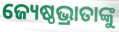
ଜ୍ୟେଷ୍ଠଭ୍ରାତାଙ୍କୁ